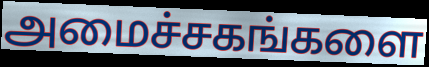
அமைச்சகங்களை